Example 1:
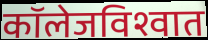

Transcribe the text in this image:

कॉलेजविश्वात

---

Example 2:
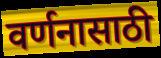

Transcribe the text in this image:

वर्णनासाठी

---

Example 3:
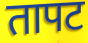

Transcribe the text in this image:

तापट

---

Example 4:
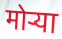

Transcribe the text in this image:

मोर्‍या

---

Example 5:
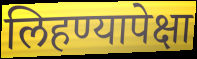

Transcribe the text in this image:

लिहण्यापेक्षा